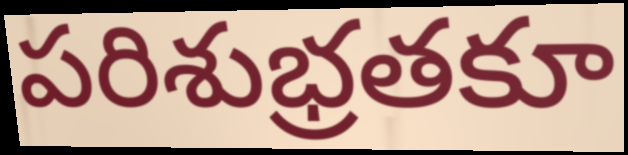
పరిశుభ్రతకూ